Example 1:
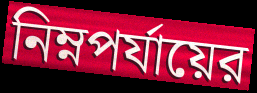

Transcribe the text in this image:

নিম্নপর্যায়ের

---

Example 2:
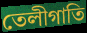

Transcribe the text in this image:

তেলীগাতি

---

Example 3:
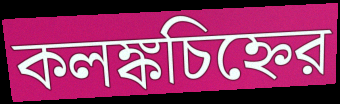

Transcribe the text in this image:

কলঙ্কচিহ্নের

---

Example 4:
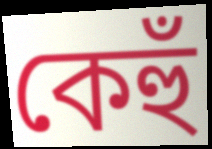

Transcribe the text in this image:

কেহুঁ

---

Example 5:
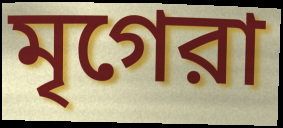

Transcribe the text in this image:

মৃগেরা